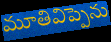
మూతివిప్పెను